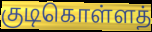
குடிகொள்ளத்